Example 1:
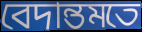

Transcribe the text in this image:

বেদান্তমতে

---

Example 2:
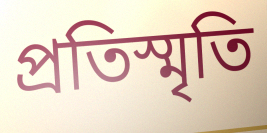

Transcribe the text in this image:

প্রতিস্মৃতি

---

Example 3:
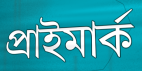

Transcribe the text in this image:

প্রাইমার্ক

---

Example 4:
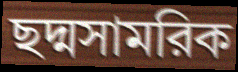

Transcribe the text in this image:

ছদ্মসামরিক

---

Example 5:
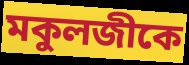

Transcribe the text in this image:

মকুলজীকে